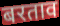
बरताव